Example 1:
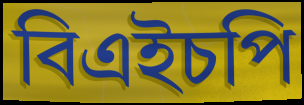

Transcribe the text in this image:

বিএইচপি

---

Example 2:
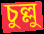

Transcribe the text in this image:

চুল্লু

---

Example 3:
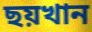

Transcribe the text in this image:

ছয়খান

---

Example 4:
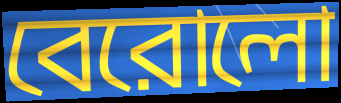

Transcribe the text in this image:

বেরোলো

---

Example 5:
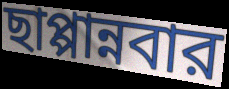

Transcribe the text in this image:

ছাপ্পান্নবার